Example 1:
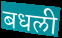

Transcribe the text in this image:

बधली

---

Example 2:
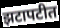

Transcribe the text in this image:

झटापटीत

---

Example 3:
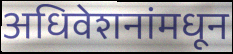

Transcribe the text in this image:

अधिवेशनांमधून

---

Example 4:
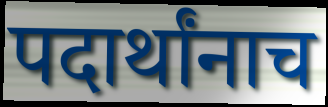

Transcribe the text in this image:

पदार्थांनाच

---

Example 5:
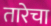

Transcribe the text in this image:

तारेचा